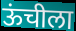
ऊंचीला